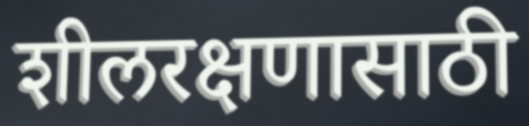
शीलरक्षणासाठी